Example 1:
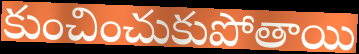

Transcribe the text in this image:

కుంచించుకుపోతాయి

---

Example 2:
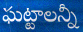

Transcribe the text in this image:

ఘట్టాలన్నీ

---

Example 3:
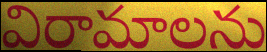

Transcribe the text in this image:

విరామాలను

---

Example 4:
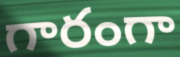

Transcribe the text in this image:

గారంగా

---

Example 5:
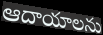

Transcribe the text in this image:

ఆదాయాలను